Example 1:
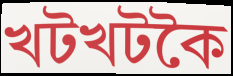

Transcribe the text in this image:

খটখটকৈ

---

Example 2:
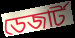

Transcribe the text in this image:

ডেজাৰ্ট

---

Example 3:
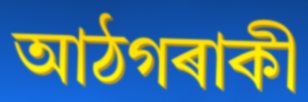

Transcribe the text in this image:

আঠগৰাকী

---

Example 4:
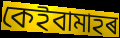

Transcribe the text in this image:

কেইবামাহৰ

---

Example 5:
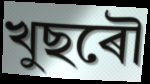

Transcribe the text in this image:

খুছৰৌ